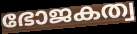
ഭോജകത്വ